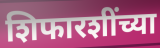
शिफारशींच्या